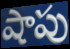
షాపు